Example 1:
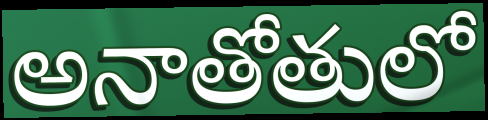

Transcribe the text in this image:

అనాతోతులో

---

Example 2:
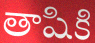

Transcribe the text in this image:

తాషికి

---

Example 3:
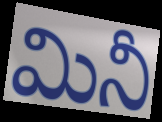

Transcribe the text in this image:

మినీ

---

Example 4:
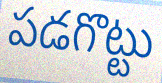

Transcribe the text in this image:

పడగొట్టు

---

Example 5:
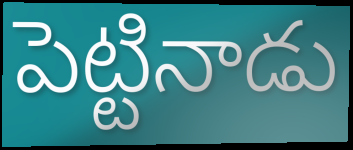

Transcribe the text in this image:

పెట్టినాడు